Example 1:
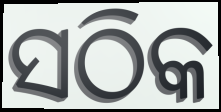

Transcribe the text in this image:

ସଠିକ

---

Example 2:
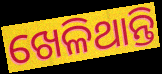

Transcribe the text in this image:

ଖେଳିଥାନ୍ତି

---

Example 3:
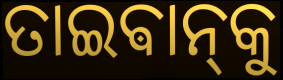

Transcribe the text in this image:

ତାଇଵାନ୍‌କୁ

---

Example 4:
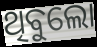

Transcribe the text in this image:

ଥିବୁଲୋ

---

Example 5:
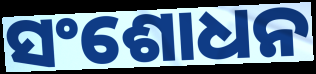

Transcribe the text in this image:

ସଂଶୋଧନ